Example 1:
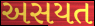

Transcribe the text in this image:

અસયત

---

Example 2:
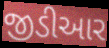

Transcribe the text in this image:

જીડીઆર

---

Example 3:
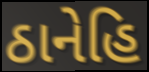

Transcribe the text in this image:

ઠાનેહિ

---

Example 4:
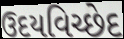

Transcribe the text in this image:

ઉદયવિચ્છેદ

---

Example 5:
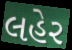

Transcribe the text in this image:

લહેર